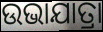
ଉଭାଯାତ୍ରା